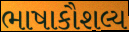
ભાષાકૌશલ્ય